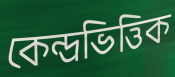
কেন্দ্রভিত্তিক